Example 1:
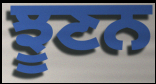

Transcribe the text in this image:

ਝੂਣਨ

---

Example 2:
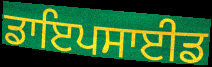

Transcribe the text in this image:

ਡਾਇਪਸਾਈਡ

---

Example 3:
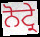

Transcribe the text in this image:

ਨੋਟ੍ਰੇ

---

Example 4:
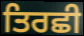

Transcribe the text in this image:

ਤਿਰਛੀ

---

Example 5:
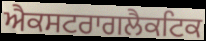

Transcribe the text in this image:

ਐਕਸਟਰਾਗਲੈਕਟਿਕ